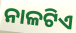
ନାଳଟିଏ